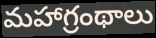
మహాగ్రంథాలు